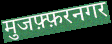
मुजफ़्फ़रनगर